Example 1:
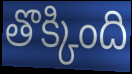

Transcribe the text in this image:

తొక్కింది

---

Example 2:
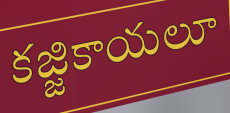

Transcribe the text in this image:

కజ్జికాయలూ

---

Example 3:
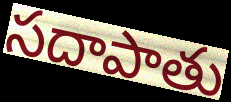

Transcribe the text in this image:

సదాపాతు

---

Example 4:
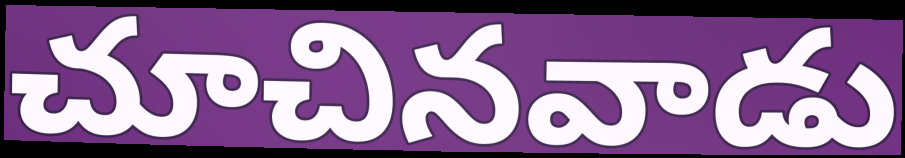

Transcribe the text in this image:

చూచినవాడు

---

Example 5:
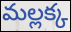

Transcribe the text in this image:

మల్లక్క